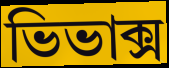
ভিভাক্স